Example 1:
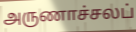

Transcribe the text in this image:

அருணாச்சலப்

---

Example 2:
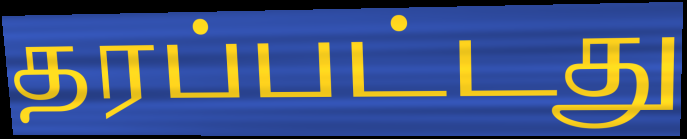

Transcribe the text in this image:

தரப்பட்டது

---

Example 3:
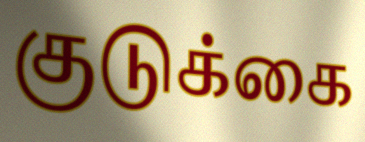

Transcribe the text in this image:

குடுக்கை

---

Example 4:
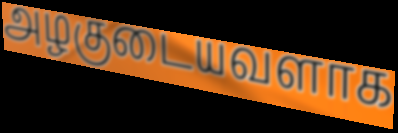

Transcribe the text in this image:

அழகுடையவளாக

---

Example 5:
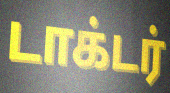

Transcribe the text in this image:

டாக்டர்